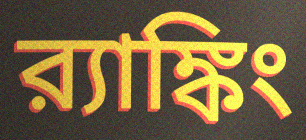
র‍্যাঙ্কিং